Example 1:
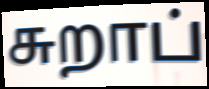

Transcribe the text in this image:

சுறாப்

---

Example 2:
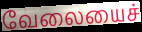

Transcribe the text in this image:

வேலையைச்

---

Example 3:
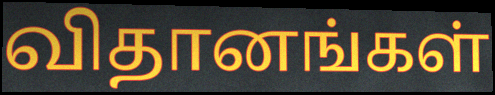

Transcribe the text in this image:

விதானங்கள்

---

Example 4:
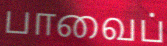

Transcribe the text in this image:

பாவைப்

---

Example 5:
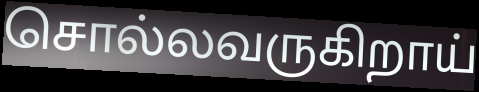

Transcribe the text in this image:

சொல்லவருகிறாய்